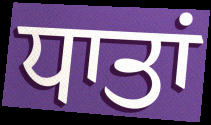
ਧਾਤਾਂ